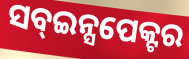
ସବ୍ଇନ୍ସପେକ୍ଟର